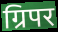
ग्रिपर